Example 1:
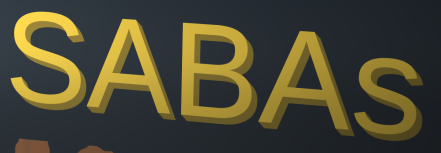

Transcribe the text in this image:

SABAs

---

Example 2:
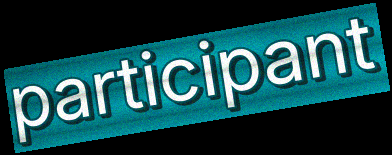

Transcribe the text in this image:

participant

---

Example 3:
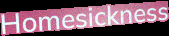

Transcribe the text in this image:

Homesickness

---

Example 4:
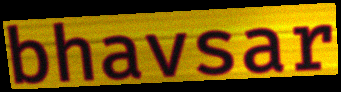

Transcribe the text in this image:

bhavsar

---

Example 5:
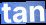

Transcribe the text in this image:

tan